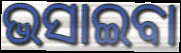
ଭସାଇବା